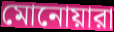
মোনোয়ারা